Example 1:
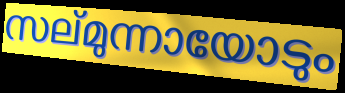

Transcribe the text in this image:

സല്മുന്നായോടും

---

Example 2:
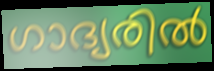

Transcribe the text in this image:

ഗാദ്യരിൽ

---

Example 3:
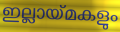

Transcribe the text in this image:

ഇല്ലായ്മകളും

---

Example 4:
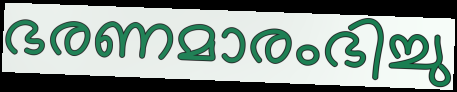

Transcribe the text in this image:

ഭരണമാരംഭിച്ചു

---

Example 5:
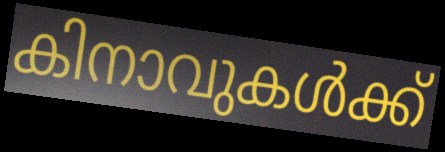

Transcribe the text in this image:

കിനാവുകൾക്ക്